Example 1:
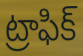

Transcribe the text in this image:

ట్రాఫిక్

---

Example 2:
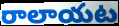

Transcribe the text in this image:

రాలాయట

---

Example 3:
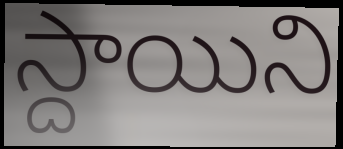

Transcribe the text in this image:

స్దాయిని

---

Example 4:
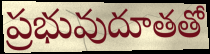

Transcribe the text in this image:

ప్రభువుదూతతో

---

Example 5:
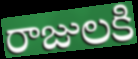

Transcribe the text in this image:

రాజులకి